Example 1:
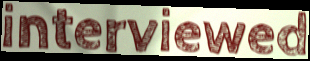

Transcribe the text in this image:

interviewed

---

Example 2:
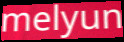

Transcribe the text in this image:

melyun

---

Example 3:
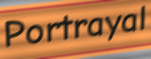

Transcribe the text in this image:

Portrayal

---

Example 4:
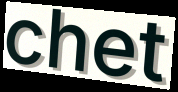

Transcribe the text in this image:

chet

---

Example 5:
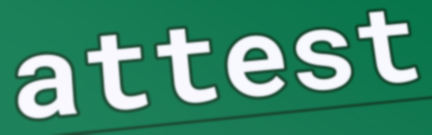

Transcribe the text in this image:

attest